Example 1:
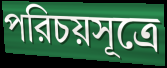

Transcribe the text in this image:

পরিচয়সূত্রে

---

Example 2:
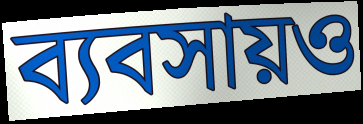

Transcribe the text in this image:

ব্যবসায়ও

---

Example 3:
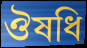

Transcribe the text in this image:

ঔষধি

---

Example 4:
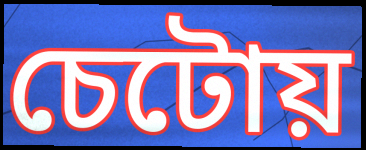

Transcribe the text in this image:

চেটোয়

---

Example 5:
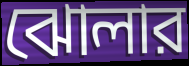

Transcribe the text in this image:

ঝোলার